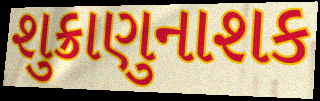
શુક્રાણુનાશક